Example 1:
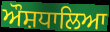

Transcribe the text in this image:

ਔਸ਼ਧਾਲਿਆ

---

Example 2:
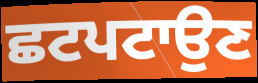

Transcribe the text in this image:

ਛਟਪਟਾਉਣ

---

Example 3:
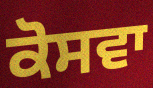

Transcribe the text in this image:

ਕੋਸਵਾ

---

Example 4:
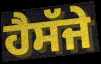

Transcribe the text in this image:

ਹੈਸੱਜੇ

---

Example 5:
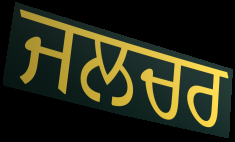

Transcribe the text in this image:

ਜਲਚਰ